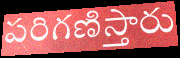
పరిగణిస్తారు